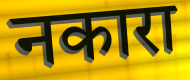
नकारा